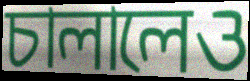
চালালেও